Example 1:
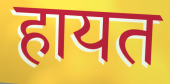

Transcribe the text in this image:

हायत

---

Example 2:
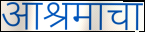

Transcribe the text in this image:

आश्रमाचा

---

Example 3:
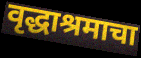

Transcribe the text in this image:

वृद्धाश्रमाचा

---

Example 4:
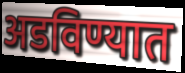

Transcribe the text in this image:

अडविण्यात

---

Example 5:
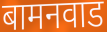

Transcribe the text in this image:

बामनवाड